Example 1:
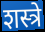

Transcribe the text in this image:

शस्त्रे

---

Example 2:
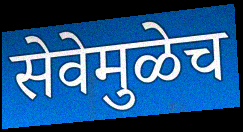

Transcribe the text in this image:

सेवेमुळेच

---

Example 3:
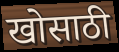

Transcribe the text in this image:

खोसाठी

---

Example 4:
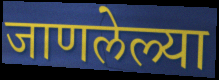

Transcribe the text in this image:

जाणलेल्या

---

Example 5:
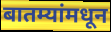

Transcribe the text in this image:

बातम्यांमधून